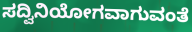
ಸದ್ವಿನಿಯೋಗವಾಗುವಂತೆ